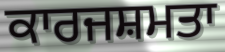
ਕਾਰਜਸ਼ਮਤਾ